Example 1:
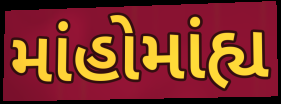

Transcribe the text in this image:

માંહોમાંહ્ય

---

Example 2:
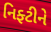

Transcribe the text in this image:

નિફ્ટીને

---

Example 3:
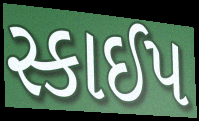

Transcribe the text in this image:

સ્કાઈપ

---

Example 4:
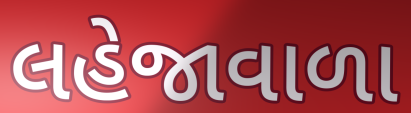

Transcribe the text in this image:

લહેજાવાળા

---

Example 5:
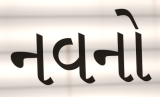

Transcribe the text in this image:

નવનો